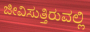
ಜೀವಿಸುತ್ತಿರುವಲ್ಲಿ